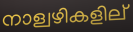
നാള്വഴികളില്